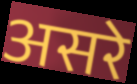
असरे